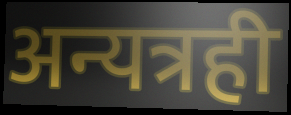
अन्यत्रही